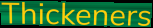
Thickeners